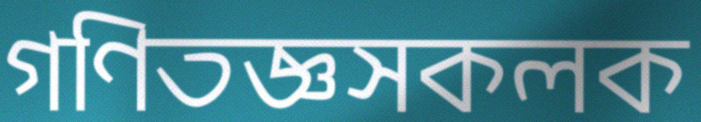
গণিতজ্ঞসকলক